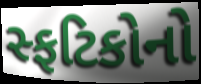
સ્ફટિકોનો